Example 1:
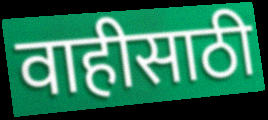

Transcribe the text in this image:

वाहीसाठी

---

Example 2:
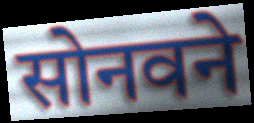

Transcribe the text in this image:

सोनवने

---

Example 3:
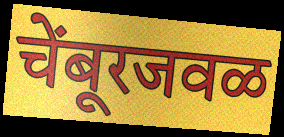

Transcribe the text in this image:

चेंबूरजवळ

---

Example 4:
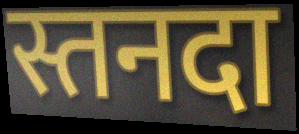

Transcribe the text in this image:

स्तनदा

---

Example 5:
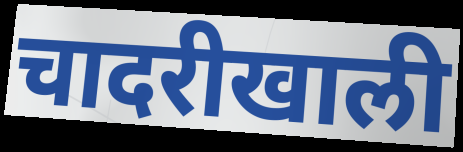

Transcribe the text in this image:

चादरीखाली